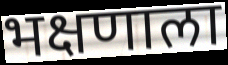
भक्षणाला